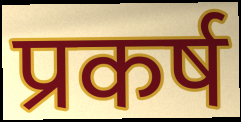
प्रकर्ष